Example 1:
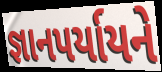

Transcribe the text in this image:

જ્ઞાનપર્યાયને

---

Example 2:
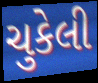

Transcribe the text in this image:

ચુકેલી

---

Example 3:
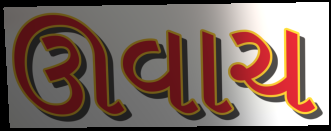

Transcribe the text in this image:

ઊવાચ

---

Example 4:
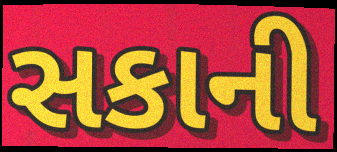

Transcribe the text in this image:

સકાની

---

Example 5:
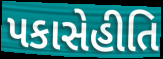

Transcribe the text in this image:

પકાસેહીતિ